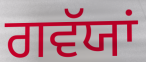
ਗਵੱਯਾਂ